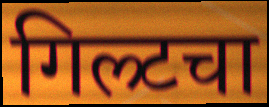
गिल्टचा